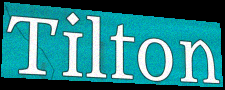
Tilton